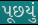
પૂછયું